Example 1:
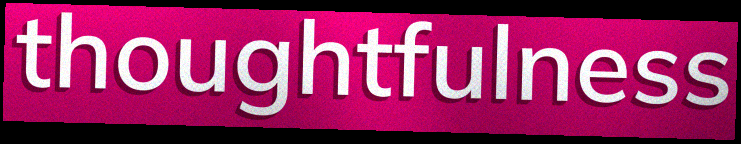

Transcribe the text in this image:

thoughtfulness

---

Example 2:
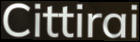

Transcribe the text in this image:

Cittirai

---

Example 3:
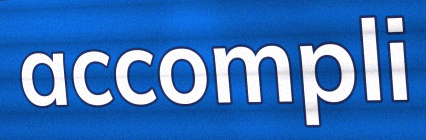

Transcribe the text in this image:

accompli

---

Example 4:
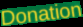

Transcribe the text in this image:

Donation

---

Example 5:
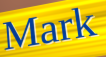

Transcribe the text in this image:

Mark